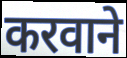
करवाने